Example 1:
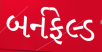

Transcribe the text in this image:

બર્નફેલ્ડ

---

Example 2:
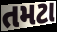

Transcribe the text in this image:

તમટા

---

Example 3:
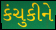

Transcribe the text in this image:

કંચુકીને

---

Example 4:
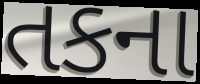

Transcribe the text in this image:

તકના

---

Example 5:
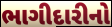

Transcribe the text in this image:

ભાગીદારીનો